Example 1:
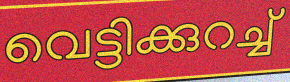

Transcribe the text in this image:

വെട്ടിക്കുറച്ച്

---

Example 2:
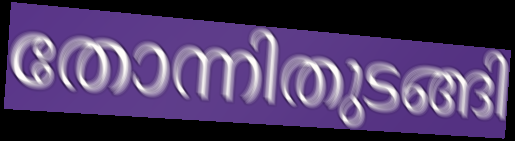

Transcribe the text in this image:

തോന്നിതുടങ്ങി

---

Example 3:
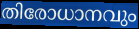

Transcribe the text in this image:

തിരോധാനവും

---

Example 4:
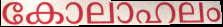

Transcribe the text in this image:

കോലാഹലം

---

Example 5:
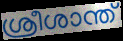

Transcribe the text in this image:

ശ്രീശാന്ത്